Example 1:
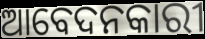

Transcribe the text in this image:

ଆବେଦନକାରୀ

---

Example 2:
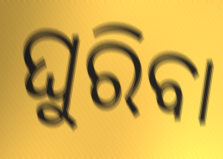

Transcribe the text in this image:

ଘୁରିବା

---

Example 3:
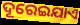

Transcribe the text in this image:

ଦୂରେଇଯାଏ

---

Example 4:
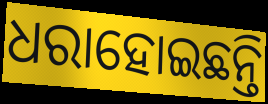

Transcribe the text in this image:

ଧରାହୋଇଛନ୍ତି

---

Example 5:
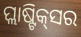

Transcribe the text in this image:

ପ୍ଲାଷ୍ଟିକ୍‌ସର